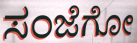
ಸಂಜೆಗೋ